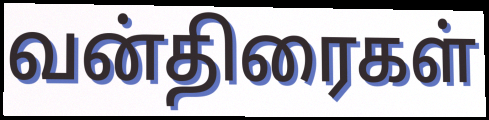
வன்திரைகள்